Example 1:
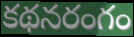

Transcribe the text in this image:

కథనరంగం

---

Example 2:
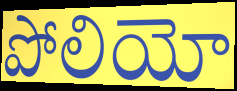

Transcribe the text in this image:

పోలియో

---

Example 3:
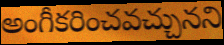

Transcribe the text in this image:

అంగీకరించవచ్చునని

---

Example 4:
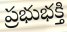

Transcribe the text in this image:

ప్రభుభక్తి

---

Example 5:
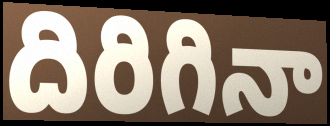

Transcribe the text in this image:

దిరిగినా